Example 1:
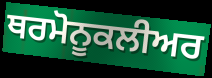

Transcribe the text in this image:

ਥਰਮੋਨੂਕਲੀਅਰ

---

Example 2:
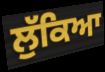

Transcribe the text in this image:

ਲੁੱਕਿਆ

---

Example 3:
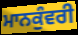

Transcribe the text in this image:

ਮਾਨਕੁੰਵਰੀ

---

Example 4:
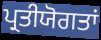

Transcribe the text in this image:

ਪ੍ਰਤੀਯੋਗਤਾਂ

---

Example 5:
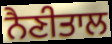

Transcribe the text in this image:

ਨੈਣੀਤਾਲ